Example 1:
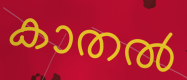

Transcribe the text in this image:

കാതൽ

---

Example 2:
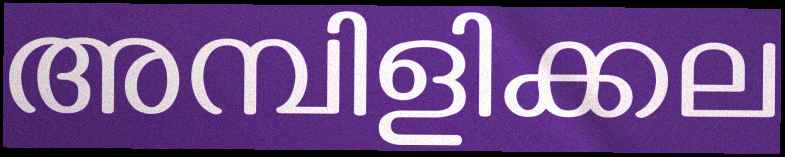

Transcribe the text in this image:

അമ്പിളിക്കല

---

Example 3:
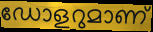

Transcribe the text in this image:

ഡോളറുമാണ്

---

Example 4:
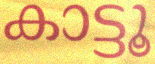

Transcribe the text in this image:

കാട്ടൂ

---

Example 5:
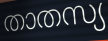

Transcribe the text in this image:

താതസ്യ